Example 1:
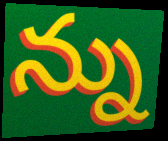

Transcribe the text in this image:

న్ను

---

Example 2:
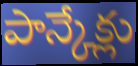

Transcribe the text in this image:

పాన్కేక్లు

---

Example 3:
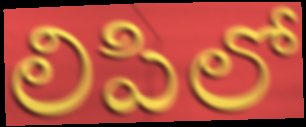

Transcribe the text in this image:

లిపిలో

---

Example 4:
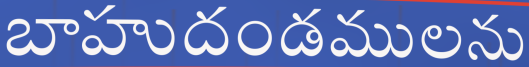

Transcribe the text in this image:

బాహుదండములను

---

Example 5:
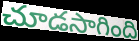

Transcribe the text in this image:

చూడసాగింది